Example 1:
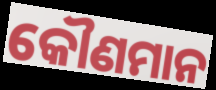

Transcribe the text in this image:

କୌଣମାନ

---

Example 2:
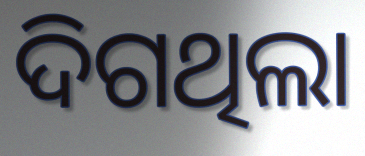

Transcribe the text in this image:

ଦିଗଥିଲା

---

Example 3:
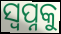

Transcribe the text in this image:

ସ୍ୱପ୍ନକୁ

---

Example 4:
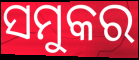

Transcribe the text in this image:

ସମୁକର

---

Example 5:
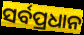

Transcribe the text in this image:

ସର୍ବପ୍ରଧାନ